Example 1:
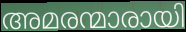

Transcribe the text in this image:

അമരന്മാരായി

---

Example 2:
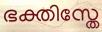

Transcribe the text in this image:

ഭക്തിസ്തേ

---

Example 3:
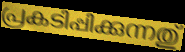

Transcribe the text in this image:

പ്രകടിപ്പിക്കുന്നതു്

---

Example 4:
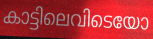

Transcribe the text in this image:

കാട്ടിലെവിടെയോ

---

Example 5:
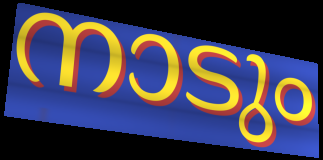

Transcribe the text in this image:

നാടും